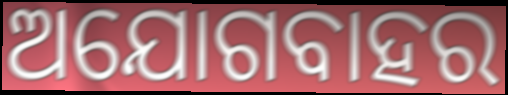
ଅଯୋଗବାହର